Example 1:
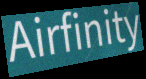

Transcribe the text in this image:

Airfinity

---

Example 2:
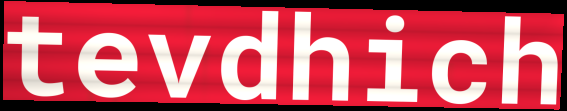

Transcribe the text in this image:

tevdhich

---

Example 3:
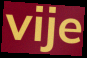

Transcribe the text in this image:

vije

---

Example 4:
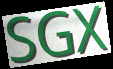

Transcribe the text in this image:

SGX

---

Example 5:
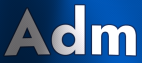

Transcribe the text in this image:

Adm